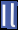
Il